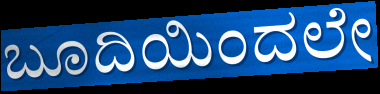
ಬೂದಿಯಿಂದಲೇ